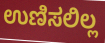
ಉಣಿಸಲಿಲ್ಲ